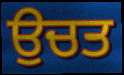
ਉਚਤ